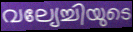
വല്യേച്ചിയുടെ